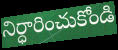
నిర్ధారించుకోండి